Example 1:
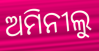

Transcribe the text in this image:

ଅମିନୀଲୁ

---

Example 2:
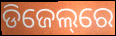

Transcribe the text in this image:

ଡିଜେଲ୍‌ରେ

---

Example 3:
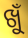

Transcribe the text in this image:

ଖୁଁ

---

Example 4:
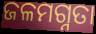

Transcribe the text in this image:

ଜଳମଗ୍ନତା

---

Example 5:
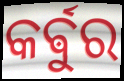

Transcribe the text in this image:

କର୍ଵୁର